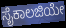
ಸೈಕಾಲಜಿಯೇ